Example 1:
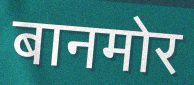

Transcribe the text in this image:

बानमोर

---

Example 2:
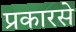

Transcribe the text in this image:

प्रकारसे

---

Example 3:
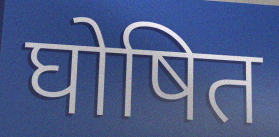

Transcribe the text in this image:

घोषित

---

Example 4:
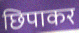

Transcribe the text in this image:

छिपाकर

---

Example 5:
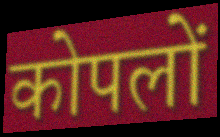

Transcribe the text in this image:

कोपलों